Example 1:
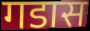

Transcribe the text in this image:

गडास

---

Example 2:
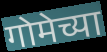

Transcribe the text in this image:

गोमेच्या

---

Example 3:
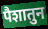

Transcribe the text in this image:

पैशातुन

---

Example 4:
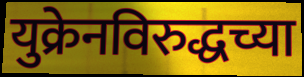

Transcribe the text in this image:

युक्रेनविरुद्धच्या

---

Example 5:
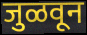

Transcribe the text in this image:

जुळवून